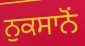
ਨੁਕਸਾਨੋਂ